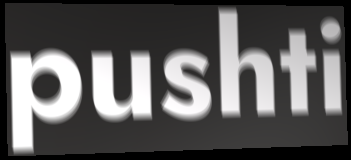
pushti